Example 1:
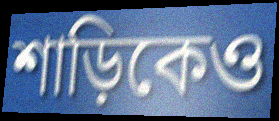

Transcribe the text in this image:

শাড়িকেও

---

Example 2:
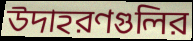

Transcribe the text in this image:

উদাহরণগুলির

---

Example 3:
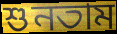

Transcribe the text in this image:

শুনতাম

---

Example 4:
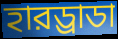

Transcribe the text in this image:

হারড্রাডা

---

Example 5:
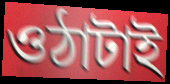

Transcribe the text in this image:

ওঠাটাই